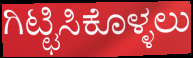
ಗಿಟ್ಟಿಸಿಕೊಳ್ಳಲು